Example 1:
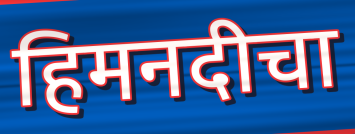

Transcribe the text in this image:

हिमनदीचा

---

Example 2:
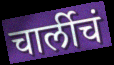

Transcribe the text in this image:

चार्लीचं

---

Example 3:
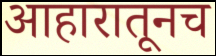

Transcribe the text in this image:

आहारातूनच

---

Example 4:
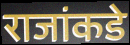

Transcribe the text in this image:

राजांकडे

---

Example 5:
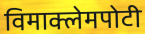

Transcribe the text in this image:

विमाक्लेमपोटी